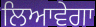
ਲਿਆਵੇਗਾ